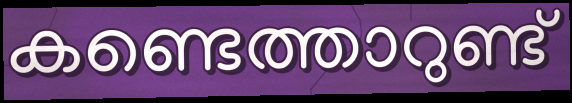
കണ്ടെത്താറുണ്ട്